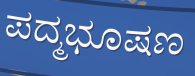
ಪದ್ಮಭೂಷಣ